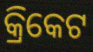
କ୍ରିକେଟ